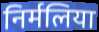
निर्मलिया